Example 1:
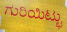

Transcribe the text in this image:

ಗುರಿಯಿಟ್ಟು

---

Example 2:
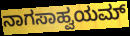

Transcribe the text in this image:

ನಾಗಸಾಹ್ವಯಮ್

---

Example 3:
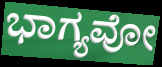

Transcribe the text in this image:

ಭಾಗ್ಯವೋ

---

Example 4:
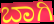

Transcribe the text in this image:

ಬಾಗಿ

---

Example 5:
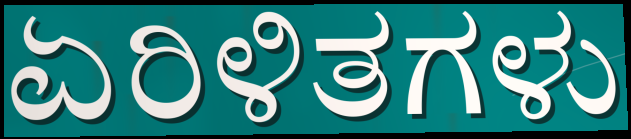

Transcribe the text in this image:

ಏರಿಳಿತಗಳು